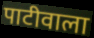
पाटीवाला